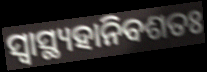
ସ୍ୱାସ୍ଥ୍ୟହାନିବଶତଃ